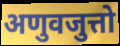
अणुवजुत्तो